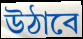
উঠাবে